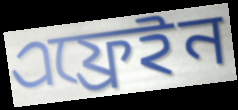
এফ্রেইন